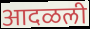
आदळली